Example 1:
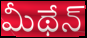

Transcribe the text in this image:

మీథేన్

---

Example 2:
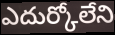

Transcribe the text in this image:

ఎదుర్కోలేని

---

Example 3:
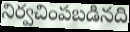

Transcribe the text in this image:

నిర్వచింపబడినది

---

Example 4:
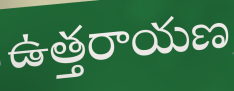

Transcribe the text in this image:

ఉత్తరాయణ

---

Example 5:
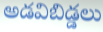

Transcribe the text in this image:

అడవిబిడ్డలు